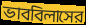
ভাববিলাসের